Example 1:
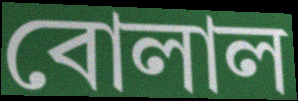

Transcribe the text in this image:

বোলাল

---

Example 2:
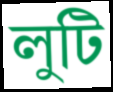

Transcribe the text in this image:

লুটি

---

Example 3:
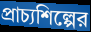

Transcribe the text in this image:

প্রাচ্যশিল্পের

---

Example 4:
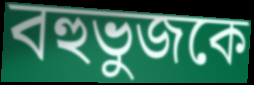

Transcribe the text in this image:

বহুভুজকে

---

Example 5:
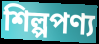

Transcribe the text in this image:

শিল্পপণ্য